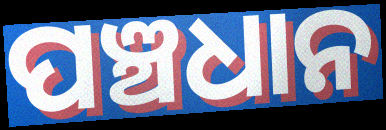
ପଞ୍ଚଧାନ